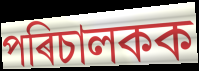
পৰিচালকক